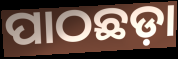
ପାଠଛଡ଼ା